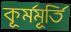
কূর্মমূর্তি